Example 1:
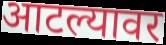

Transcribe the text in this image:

आटल्यावर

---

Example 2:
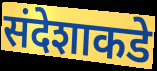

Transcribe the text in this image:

संदेशाकडे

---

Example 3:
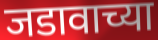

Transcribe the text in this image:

जडावाच्या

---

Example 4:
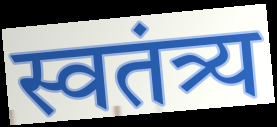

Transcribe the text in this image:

स्वतंत्र्य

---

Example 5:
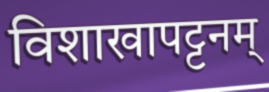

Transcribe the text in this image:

विशाखापट्टनम्